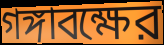
গঙ্গাবক্ষের